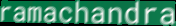
ramachandra